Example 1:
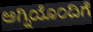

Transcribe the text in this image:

ಅಗ್ನಿಯೊಂದಿಗೆ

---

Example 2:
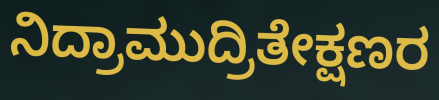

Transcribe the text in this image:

ನಿದ್ರಾಮುದ್ರಿತೇಕ್ಷಣರ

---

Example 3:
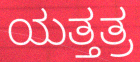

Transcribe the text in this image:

ಯತ್ತತ್ರ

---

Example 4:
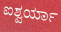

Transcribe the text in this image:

ಐಶ್ವರ್ಯಾ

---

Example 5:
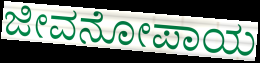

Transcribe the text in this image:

ಜೀವನೋಪಾಯ